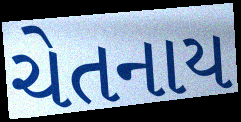
ચેતનાય